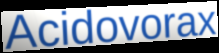
Acidovorax